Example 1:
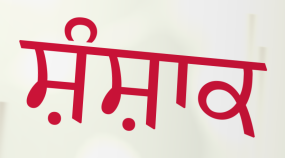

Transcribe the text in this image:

ਸ਼ੰਸ਼ਾਕ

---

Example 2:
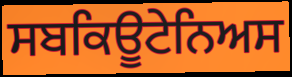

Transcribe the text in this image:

ਸਬਕਿਊਟੇਨਿਅਸ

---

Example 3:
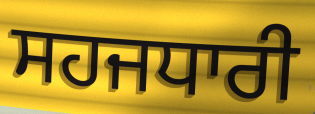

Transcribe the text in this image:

ਸਹਜਧਾਰੀ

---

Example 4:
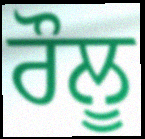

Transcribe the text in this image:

ਰੌਲੂ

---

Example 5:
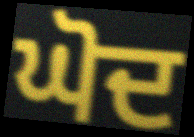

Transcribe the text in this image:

ਘੋਦ